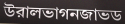
উরালভাগনজাভড